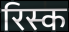
रिस्क